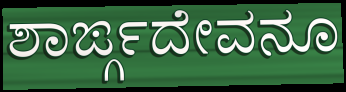
ಶಾರ್ಙ್ಗದೇವನೂ